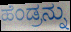
ಹೆಂಡ್ರನ್ನು